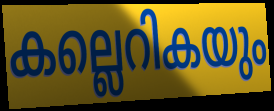
കല്ലെറികയും